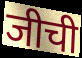
जीची